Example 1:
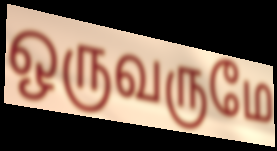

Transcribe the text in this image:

ஒருவருமே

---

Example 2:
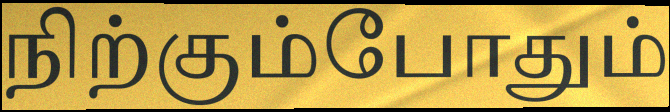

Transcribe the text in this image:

நிற்கும்போதும்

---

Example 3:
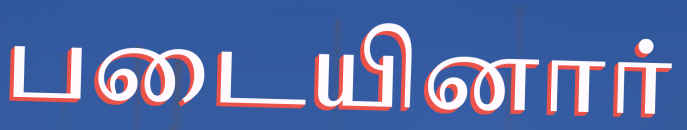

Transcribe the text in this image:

படையினார்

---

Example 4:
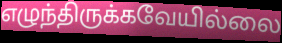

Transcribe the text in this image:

எழுந்திருக்கவேயில்லை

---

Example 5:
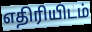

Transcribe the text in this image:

எதிரியிடம்